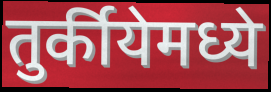
तुर्कीयेमध्ये